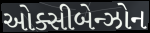
ઓક્સીબેન્ઝોન